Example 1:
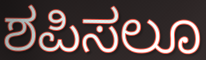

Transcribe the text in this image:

ಶಪಿಸಲೂ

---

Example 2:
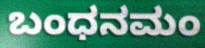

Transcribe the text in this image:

ಬಂಧನಮಂ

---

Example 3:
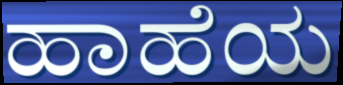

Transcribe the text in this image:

ಹಾಹೆಯ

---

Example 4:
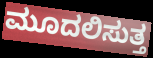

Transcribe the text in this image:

ಮೂದಲಿಸುತ್ತ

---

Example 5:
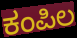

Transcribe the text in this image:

ಕಂಪಿಲ